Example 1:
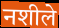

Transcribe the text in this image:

नशीले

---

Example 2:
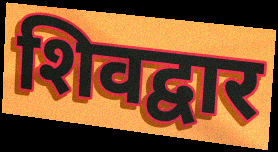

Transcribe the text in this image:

शिवद्वार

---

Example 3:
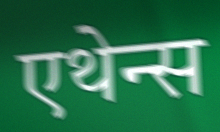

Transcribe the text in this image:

एथेन्स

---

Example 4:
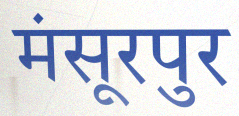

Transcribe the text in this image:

मंसूरपुर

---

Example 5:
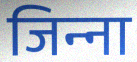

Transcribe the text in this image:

जिन्ना